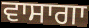
ਵਾਸਾਗਾ